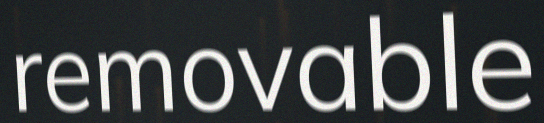
removable